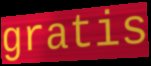
gratis